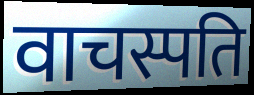
वाचस्पति